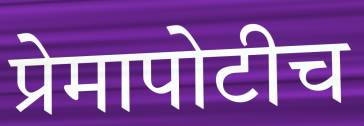
प्रेमापोटीच